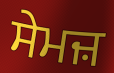
ਸੇਮਜ਼